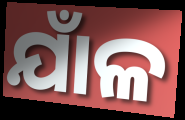
ଯାଁଳ